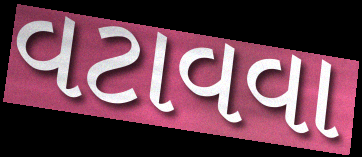
વટાવવા